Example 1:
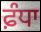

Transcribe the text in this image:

ਫ਼ੰਧਾ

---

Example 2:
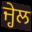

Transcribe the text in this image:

ਜ੍ਹੇਲ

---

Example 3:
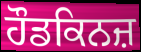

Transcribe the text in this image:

ਹੌਡਕਿਨਜ਼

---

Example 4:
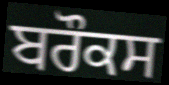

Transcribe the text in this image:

ਬਰੌਕਸ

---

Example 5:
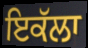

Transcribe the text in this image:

ਇਕੱਲਾ